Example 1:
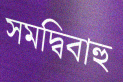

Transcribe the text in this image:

সমদ্বিবাহু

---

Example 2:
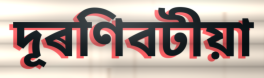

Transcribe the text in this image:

দূৰণিবটীয়া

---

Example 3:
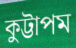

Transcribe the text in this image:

কুট্টাপম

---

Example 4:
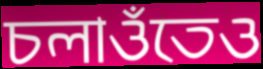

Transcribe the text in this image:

চলাওঁতেও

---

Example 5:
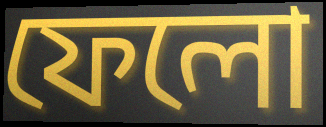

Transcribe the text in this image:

ফেলো